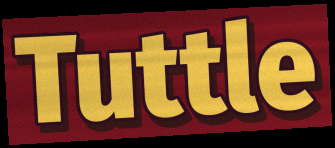
Tuttle